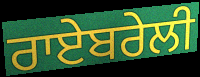
ਰਾਏਬਰੇਲੀ